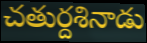
చతుర్దశినాడు